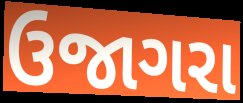
ઉજાગરા